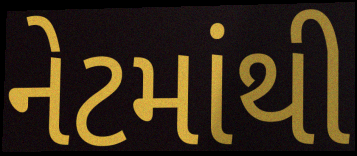
નેટમાંથી